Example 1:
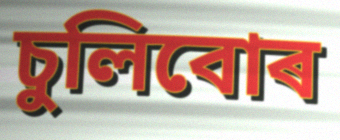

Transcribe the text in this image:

চুলিবোৰ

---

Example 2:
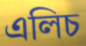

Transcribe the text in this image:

এলিচ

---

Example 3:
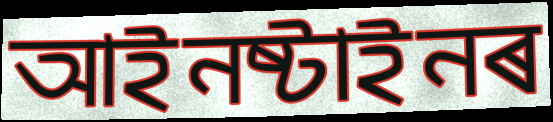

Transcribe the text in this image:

আইনষ্টাইনৰ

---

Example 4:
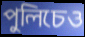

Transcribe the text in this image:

পুলিচেও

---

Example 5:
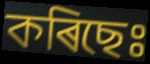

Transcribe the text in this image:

কৰিছেঃ